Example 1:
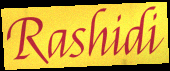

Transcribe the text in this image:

Rashidi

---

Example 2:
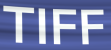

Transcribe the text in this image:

TIFF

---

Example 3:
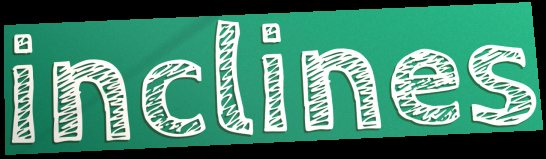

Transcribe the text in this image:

inclines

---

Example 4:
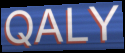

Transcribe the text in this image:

QALY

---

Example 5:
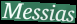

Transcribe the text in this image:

Messias